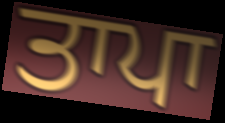
ਤਾਪਾ